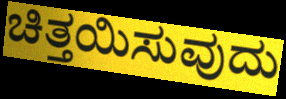
ಚಿತ್ತಯಿಸುವುದು